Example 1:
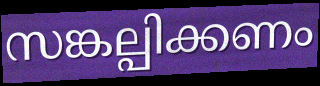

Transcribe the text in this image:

സങ്കല്പിക്കണം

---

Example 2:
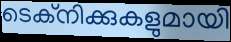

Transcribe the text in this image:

ടെക്നിക്കുകളുമായി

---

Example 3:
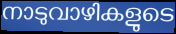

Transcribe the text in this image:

നാടുവാഴികളുടെ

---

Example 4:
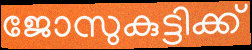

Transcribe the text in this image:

ജോസുകുട്ടിക്ക്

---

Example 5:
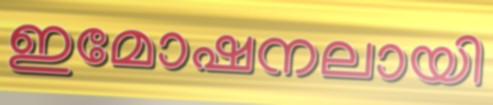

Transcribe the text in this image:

ഇമോഷനലായി